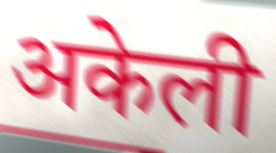
अकेली